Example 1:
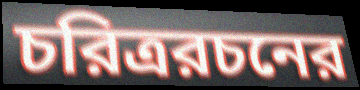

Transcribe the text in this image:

চরিত্ররচনের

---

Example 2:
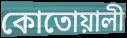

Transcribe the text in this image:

কোতোয়ালী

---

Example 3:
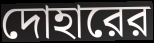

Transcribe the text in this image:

দোহারের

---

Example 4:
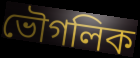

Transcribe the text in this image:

ভৌগলিক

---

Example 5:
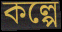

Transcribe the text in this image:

কল্পে